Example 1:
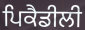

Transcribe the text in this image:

ਪਿਕੈਡੀਲੀ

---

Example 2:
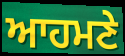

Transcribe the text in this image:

ਆਹਮਣੇ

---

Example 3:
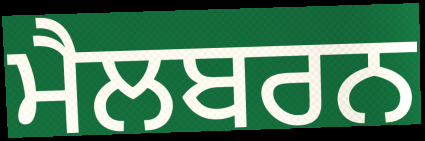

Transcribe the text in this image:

ਮੈਲਬਰਨ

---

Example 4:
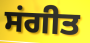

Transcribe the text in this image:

ਸਂਗੀਤ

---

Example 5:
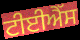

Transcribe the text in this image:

ਟੀਈਐੱਸ